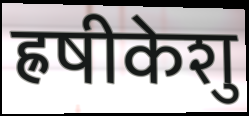
ह्रषीकेशु